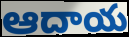
ఆదాయ